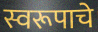
स्वरूपाचे